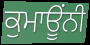
ਕੁਮਾਊਂਨੀ